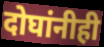
दोघांनीही